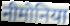
नीमोनिया